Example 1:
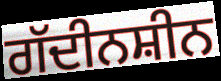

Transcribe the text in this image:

ਗੱਦੀਨਸ਼ੀਨ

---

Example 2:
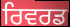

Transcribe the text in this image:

ਰਿਵਰਡ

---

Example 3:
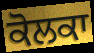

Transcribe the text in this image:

ਕੋਲਕਾ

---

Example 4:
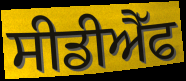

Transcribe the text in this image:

ਸੀਡੀਐੱਫ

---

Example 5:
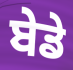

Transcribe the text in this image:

ਬੇਡੇ